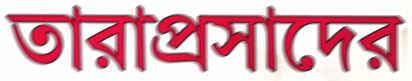
তারাপ্রসাদের